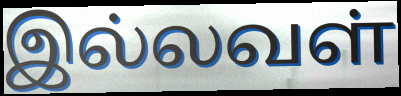
இல்லவள்